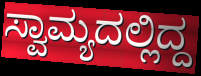
ಸ್ವಾಮ್ಯದಲ್ಲಿದ್ದ